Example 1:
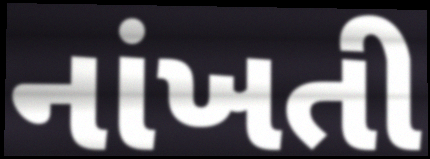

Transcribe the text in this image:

નાંખતી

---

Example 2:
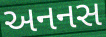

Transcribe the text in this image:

અનનસ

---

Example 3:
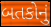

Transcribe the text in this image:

બતકોનું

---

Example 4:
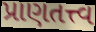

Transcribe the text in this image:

પ્રાણતત્ત્વ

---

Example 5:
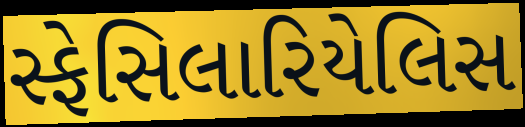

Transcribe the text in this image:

સ્ફેસિલારિયેલિસ